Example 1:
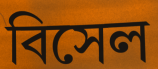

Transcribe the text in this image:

বিসেল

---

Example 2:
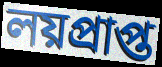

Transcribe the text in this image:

লয়প্রাপ্ত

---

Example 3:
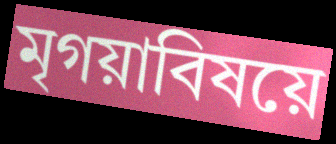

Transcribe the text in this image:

মৃগয়াবিষয়ে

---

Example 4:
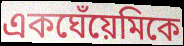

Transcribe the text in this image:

একঘেঁয়েমিকে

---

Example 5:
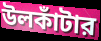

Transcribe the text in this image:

উলকাঁটার